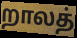
றாலத்